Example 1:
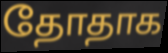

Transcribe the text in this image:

தோதாக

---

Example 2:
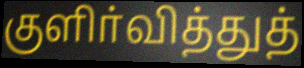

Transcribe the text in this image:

குளிர்வித்துத்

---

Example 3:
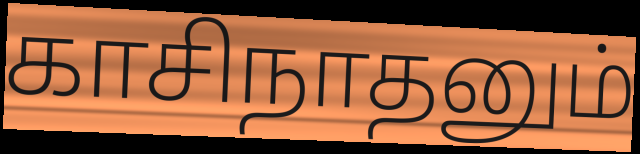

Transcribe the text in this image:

காசிநாதனும்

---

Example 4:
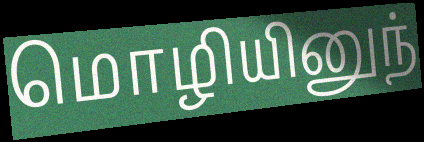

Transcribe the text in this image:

மொழியினுந்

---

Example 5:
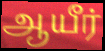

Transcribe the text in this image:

ஆயீர்